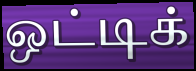
ஒட்டிக்